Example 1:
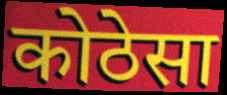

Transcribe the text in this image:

कोठेसा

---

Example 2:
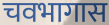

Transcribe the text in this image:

चवभागास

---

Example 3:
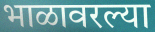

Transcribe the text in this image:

भाळावरल्या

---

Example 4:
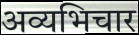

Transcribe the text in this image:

अव्यभिचार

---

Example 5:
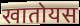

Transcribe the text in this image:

खातोयस